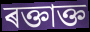
ৰক্তাক্ত